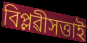
বিপ্লৱীসত্তাই